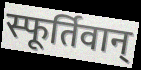
स्फूर्तिवान्